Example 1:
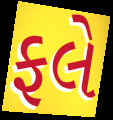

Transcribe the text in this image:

ફલે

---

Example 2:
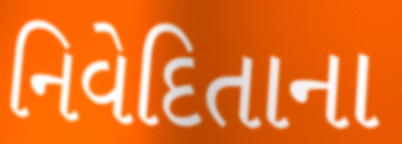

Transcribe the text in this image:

નિવેદિતાના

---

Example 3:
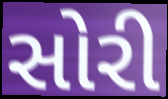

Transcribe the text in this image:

સોરી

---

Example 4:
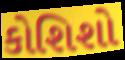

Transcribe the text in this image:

કોશિશો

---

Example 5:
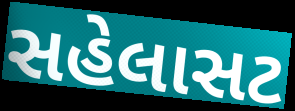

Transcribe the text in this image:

સહેલાસટ